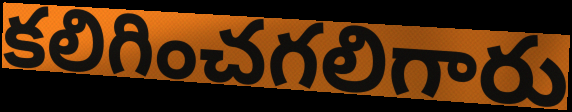
కలిగించగలిగారు